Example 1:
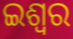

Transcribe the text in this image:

ଇଶ୍ଵର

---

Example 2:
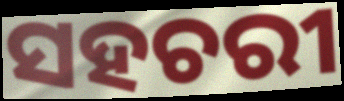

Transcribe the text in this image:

ସହଚରୀ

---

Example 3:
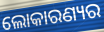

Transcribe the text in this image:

ଲୋକାରଣ୍ୟର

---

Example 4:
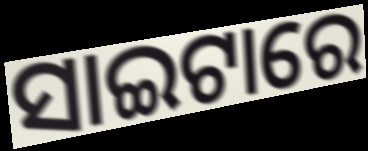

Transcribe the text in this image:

ସାଇଟାରେ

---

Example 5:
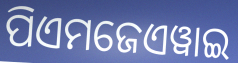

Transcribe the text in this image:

ପିଏମଜେଏୱାଇ